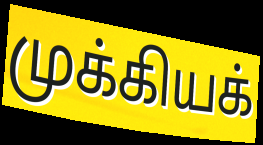
முக்கியக்